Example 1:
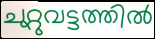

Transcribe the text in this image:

ചുറ്റുവട്ടത്തിൽ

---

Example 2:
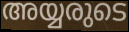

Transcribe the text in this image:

അയ്യരുടെ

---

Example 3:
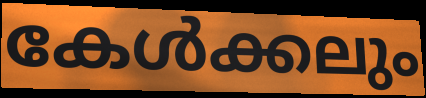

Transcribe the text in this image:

കേൾക്കലും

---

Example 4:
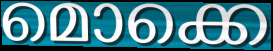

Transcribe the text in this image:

മൊക്കെ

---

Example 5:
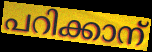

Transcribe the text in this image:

പറിക്കാന്